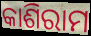
କାଶିରାମ